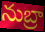
నుబ్రా